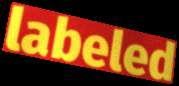
labeled